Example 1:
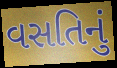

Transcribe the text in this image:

વસતિનું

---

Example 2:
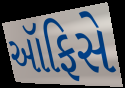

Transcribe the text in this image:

ઑફિસે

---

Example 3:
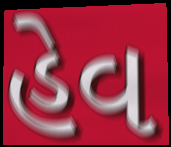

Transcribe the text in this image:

હેવ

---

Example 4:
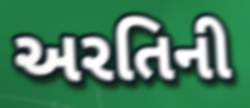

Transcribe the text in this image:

અરતિની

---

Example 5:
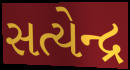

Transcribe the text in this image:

સત્યેન્દ્ર